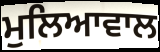
ਮੁਲਿਆਵਾਲ